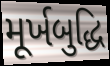
મૂર્ખબુદ્ધિ